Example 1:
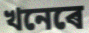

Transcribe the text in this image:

খনেৰে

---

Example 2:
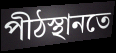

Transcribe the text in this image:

পীঠস্থানতে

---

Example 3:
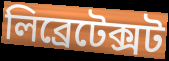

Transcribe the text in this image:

লিব্ৰেটেক্সট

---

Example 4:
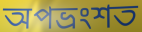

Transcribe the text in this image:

অপভ্ৰংশত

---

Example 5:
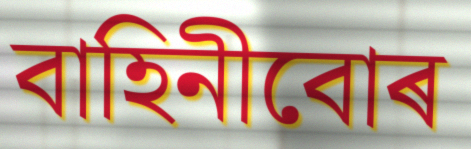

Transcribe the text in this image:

বাহিনীবোৰ